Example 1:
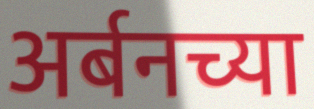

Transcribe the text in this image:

अर्बनच्या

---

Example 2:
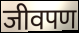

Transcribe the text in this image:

जीवपण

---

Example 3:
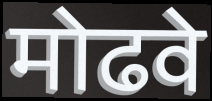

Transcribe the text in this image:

मोढवे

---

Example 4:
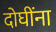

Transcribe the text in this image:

दोघींना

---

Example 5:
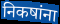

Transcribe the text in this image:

निकषांना